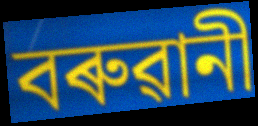
বৰুৱানী